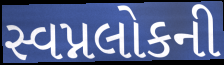
સ્વપ્નલોકની